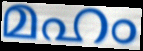
മഹം